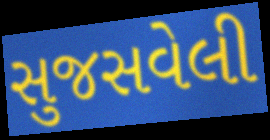
સુજસવેલી